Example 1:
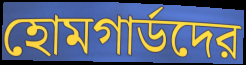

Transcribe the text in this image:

হোমগার্ডদের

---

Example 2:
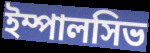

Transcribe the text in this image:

ইম্পালসিভ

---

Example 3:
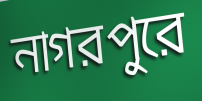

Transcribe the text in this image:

নাগরপুরে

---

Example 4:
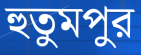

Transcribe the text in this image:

হুতুমপুর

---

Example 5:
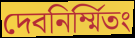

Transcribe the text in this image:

দেবনির্ম্মিতং